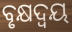
ବୃକ୍ଷଦ୍ୱୟ